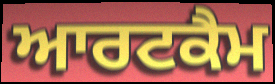
ਆਰਟਕੈਮ